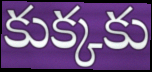
కుక్కకు